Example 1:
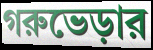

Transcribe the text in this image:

গরুভেড়ার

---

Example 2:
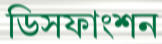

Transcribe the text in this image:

ডিসফাংশন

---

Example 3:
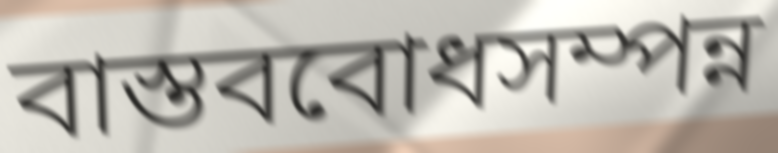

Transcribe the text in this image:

বাস্তববোধসম্পন্ন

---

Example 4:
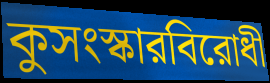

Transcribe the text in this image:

কুসংস্কারবিরোধী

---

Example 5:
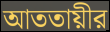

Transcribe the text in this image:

আততায়ীর